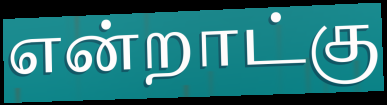
என்றாட்கு